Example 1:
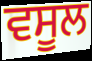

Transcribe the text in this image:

ਵਸੂਲ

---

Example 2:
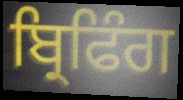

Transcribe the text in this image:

ਬ੍ਰਿਫਿੰਗ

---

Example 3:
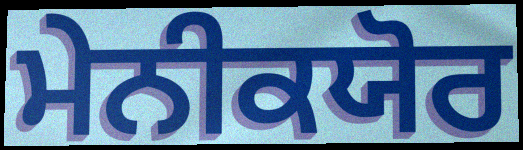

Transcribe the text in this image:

ਮੇਨੀਕਯੋਰ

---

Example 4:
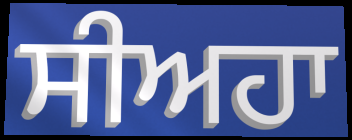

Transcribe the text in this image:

ਸੀਅਹਾ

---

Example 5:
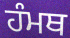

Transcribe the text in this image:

ਹੰਮਥ